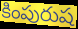
కింపురుష